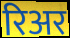
रिअर